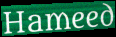
Hameed